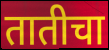
तातीचा